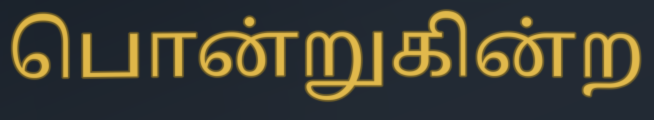
பொன்றுகின்ற